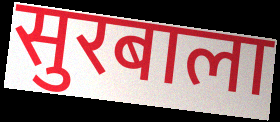
सुरबाला